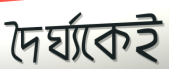
দৈর্ঘ্যকেই